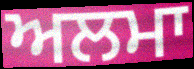
ਅਲਮਾ